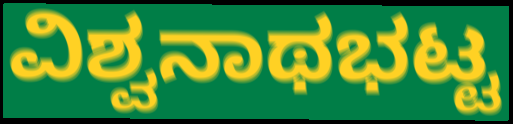
ವಿಶ್ವನಾಥಭಟ್ಟ